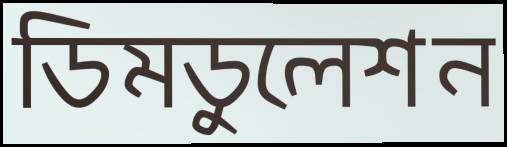
ডিমডুলেশন